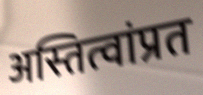
अस्तित्वांप्रत